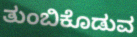
ತುಂಬಿಕೊಡುವ